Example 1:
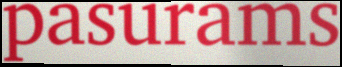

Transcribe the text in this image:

pasurams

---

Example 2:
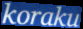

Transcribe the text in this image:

koraku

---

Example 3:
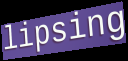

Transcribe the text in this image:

lipsing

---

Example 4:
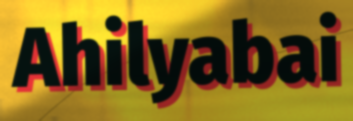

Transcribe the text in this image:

Ahilyabai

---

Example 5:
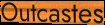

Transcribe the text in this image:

Outcastes